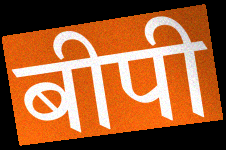
बीपी